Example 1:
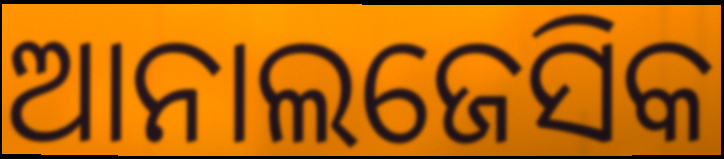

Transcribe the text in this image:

ଆନାଲଜେସିକ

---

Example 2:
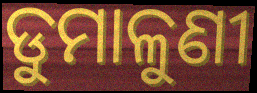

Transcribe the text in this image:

ଡୁମାଳୁଣୀ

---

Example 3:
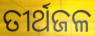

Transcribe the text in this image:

ତୀର୍ଥଜଳ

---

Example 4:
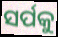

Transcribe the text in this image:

ସର୍ପକୁ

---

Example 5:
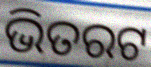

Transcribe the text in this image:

ଭିତରଟ